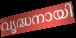
വൃദ്ധനായി